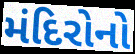
મંદિરોનો